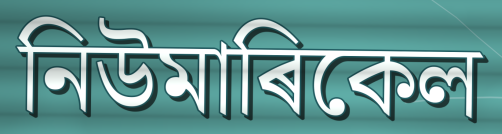
নিউমাৰিকেল